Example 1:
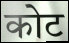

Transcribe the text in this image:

कोट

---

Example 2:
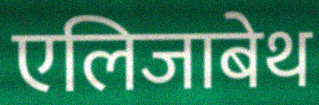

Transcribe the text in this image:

एलिजाबेथ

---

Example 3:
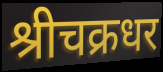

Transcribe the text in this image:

श्रीचक्रधर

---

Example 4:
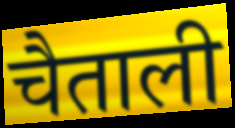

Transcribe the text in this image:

चैताली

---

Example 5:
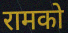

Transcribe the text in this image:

रामको